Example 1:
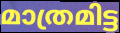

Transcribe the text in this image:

മാത്രമിട്ട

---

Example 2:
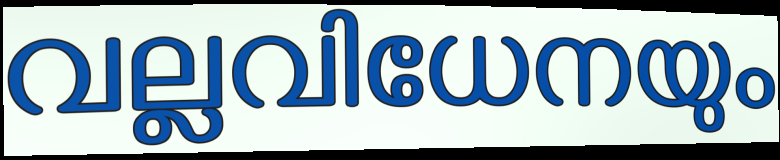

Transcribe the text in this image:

വല്ലവിധേനയും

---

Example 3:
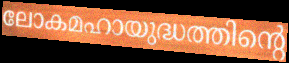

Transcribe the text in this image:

ലോകമഹായുദ്ധത്തിന്റെ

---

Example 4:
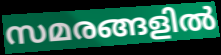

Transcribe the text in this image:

സമരങ്ങളിൽ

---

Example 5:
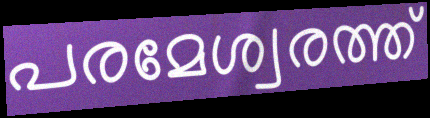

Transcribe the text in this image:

പരമേശ്വരത്ത്